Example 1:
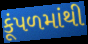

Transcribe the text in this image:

કૂંપળમાંથી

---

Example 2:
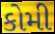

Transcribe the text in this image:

કોમી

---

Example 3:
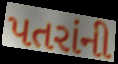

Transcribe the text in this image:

પતરાંની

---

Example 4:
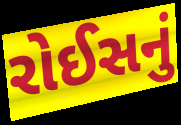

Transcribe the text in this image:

રોઈસનું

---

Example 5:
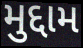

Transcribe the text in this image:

મુદ્દામ